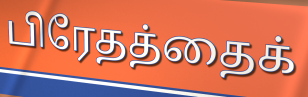
பிரேதத்தைக்